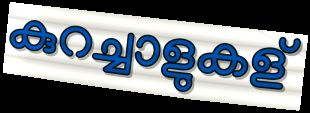
കുറച്ചാളുകള്